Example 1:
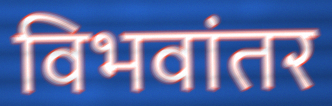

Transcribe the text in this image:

विभवांतर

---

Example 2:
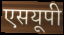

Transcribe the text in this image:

एसयूपी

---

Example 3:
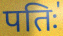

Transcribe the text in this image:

पतिः॑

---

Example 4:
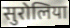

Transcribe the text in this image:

सुरोलिया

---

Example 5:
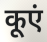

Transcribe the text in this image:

कूएं